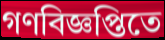
গণবিজ্ঞপ্তিতে